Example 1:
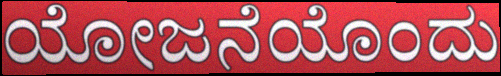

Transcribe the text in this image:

ಯೋಜನೆಯೊಂದು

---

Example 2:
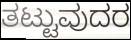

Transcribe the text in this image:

ತಟ್ಟುವುದರ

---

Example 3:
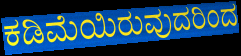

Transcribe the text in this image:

ಕಡಿಮೆಯಿರುವುದರಿಂದ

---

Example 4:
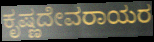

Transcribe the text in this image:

ಕೃಷ್ಣದೇವರಾಯರ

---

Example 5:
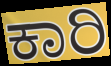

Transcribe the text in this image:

ಕಾರಿ